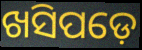
ଖସିପଡ଼େ